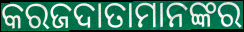
କରଜଦାତାମାନଙ୍କର